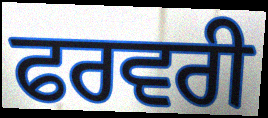
ਫਰਵਰੀ